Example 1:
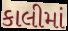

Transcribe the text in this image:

કાલીમાં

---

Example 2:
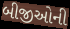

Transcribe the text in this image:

બીજીઓની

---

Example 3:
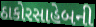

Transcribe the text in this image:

ઠાકોરસાહેબની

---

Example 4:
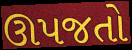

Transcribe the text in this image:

ઊપજતો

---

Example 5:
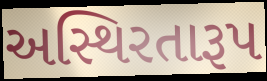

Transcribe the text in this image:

અસ્થિરતારૂપ